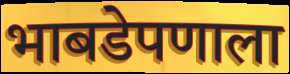
भाबडेपणाला